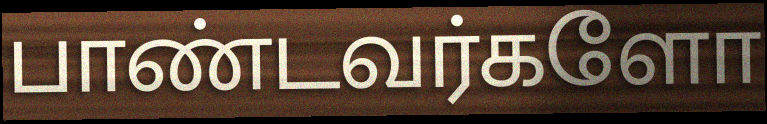
பாண்டவர்களோ